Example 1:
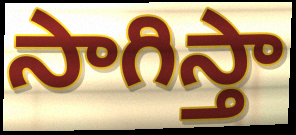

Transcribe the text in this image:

సాగిస్తా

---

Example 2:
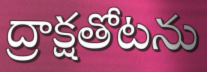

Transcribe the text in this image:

ద్రాక్షతోటను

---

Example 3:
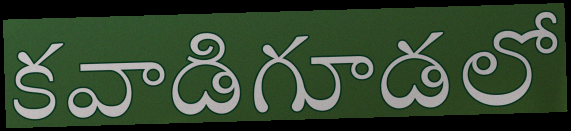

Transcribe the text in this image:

కవాడిగూడలో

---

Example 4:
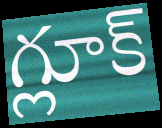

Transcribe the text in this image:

గ్లూక్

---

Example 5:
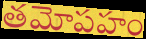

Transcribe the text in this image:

తమోపహం